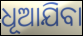
ଧୂଆଯିବା